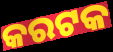
କରଟକ